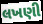
લખણી